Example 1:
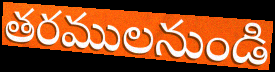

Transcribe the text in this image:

తరములనుండి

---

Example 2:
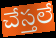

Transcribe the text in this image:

చేస్తలే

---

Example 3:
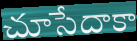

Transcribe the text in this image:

చూసేదాకా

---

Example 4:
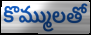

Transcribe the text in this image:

కొమ్ములతో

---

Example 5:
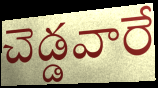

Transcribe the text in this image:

చెడ్డవారే